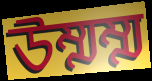
উম্মম্ম